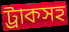
ট্রাকসহ